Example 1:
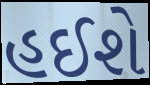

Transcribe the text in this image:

હઈશે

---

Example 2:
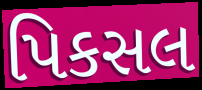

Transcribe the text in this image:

પિકસલ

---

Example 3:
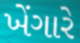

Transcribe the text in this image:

ખેંગારે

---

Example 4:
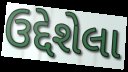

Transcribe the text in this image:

ઉદ્દેશેલા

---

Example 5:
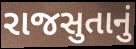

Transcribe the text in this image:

રાજસુતાનું